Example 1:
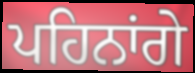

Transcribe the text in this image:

ਪਹਿਨਾਂਗੇ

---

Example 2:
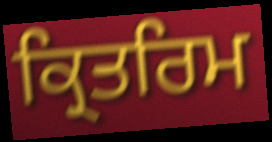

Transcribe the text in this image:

ਕ੍ਰਿਤਰਿਮ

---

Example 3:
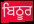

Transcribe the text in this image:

ਬਿਠੂਰ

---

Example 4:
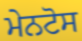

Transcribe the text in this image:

ਮੇਨਟੋਸ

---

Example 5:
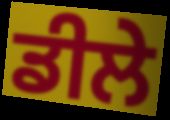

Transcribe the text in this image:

ਡੀਲੇ